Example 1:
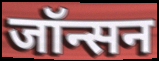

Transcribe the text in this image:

जॉन्सन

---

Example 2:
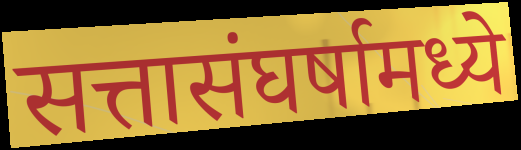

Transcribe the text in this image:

सत्तासंघर्षामध्ये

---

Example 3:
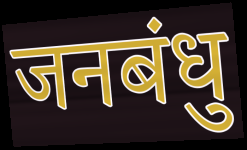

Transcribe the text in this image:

जनबंधु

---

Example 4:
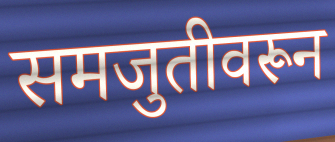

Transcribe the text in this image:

समजुतीवरून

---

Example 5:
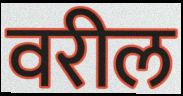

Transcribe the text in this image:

वरील